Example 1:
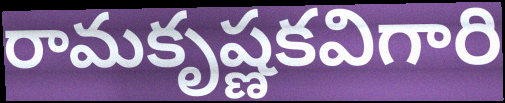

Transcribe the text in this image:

రామకృష్ణకవిగారి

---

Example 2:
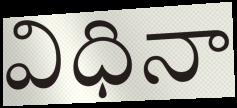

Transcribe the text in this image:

విధినా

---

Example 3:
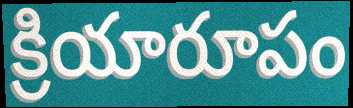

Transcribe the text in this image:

క్రియారూపం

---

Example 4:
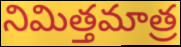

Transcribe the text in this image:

నిమిత్తమాత్ర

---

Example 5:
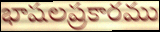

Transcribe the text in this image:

భాషలప్రకారము